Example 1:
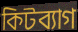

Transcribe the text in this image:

কিটব্যাগ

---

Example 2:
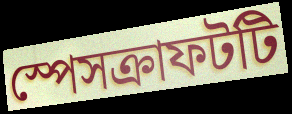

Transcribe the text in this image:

স্পেসক্রাফটটি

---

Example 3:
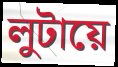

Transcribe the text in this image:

লুটায়ে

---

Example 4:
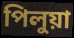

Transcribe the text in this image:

পিলুয়া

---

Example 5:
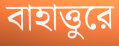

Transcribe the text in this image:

বাহাত্তুরে